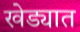
खेड्यात